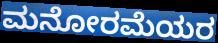
ಮನೋರಮೆಯರ